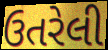
ઉતરેલી